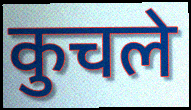
कुचले